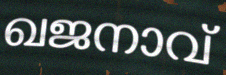
ഖജനാവ്